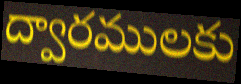
ద్వారములకు